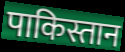
पाकिस्तान